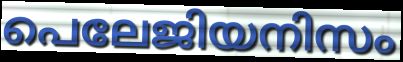
പെലേജിയനിസം